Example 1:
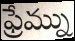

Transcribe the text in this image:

ఫ్రేమ్ను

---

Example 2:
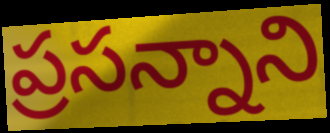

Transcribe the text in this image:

ప్రసన్నాని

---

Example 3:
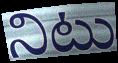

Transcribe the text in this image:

నిటు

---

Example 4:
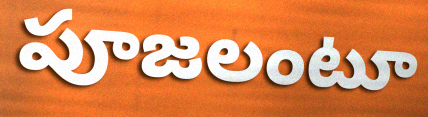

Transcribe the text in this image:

పూజలంటూ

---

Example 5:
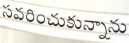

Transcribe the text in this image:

సవరించుకున్నాను